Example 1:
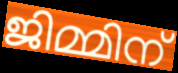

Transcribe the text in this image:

ജിമ്മിന്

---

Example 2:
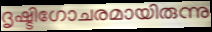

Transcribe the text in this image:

ദൃഷ്ടിഗോചരമായിരുന്നു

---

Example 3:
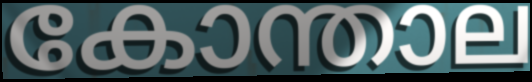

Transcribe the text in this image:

കോന്താല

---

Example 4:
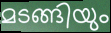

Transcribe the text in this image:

മടങ്ങിയും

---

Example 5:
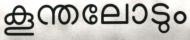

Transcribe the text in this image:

കൂന്തലോടും